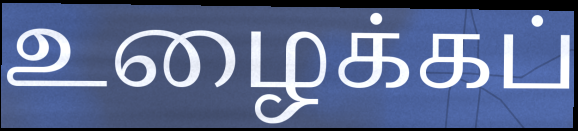
உழைக்கப்